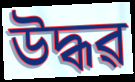
উদ্ধৱ